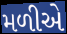
મળીએ